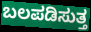
ಬಲಪಡಿಸುತ್ತ